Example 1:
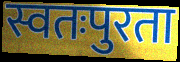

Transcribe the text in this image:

स्वतःपुरता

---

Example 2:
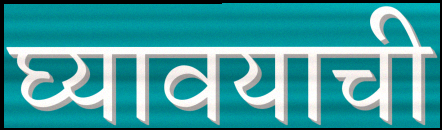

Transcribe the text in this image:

घ्यावयाची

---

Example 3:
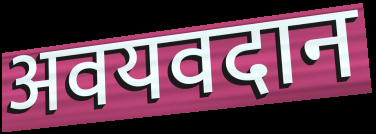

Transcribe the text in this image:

अवयवदान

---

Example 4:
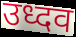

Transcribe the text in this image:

उध्दव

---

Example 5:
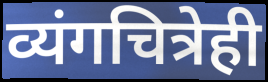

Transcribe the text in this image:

व्यंगचित्रेही